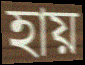
হায়